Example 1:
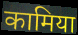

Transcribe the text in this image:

कामिया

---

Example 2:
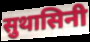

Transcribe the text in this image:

सुथासिनी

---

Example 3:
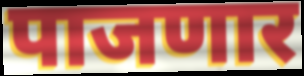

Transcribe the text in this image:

पाजणार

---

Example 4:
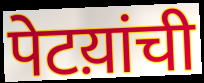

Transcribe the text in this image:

पेटय़ांची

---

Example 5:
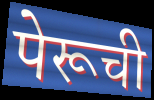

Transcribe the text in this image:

पेरूची